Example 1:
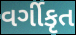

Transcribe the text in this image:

વર્ગીકૃત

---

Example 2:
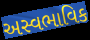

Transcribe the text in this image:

અસ્વભાવિક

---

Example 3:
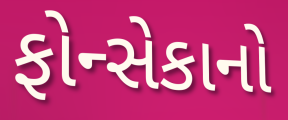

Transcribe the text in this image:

ફોન્સેકાનો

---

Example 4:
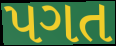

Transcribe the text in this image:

પગત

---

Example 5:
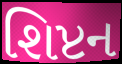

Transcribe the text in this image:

શિપ્ટન